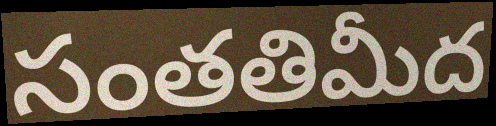
సంతతిమీద